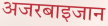
अजरबाइजान